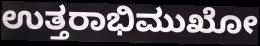
ಉತ್ತರಾಭಿಮುಖೋ